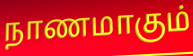
நாணமாகும்